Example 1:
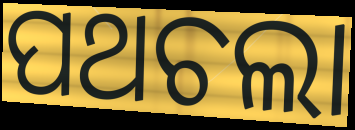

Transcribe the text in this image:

ପଥଚଲା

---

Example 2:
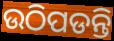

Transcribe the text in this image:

ଉଠିପଡନ୍ତି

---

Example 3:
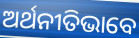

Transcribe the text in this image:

ଅର୍ଥନୀତିଭାବେ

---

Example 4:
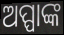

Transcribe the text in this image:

ଅପ୍ପାଙ୍କ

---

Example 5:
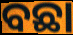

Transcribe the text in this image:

ବଛା